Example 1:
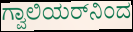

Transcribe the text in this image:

ಗ್ವಾಲಿಯರ್‌ನಿಂದ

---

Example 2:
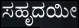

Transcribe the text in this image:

ಸಹೃದಯೀ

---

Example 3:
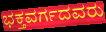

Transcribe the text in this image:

ಭಕ್ತವರ್ಗದವರು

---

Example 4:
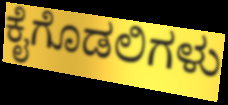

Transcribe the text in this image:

ಕೈಗೊಡಲಿಗಳು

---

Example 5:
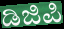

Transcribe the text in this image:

ಡಿಜಿಪಿ